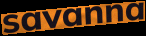
savanna